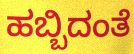
ಹಬ್ಬಿದಂತೆ